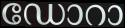
ഡോറാ